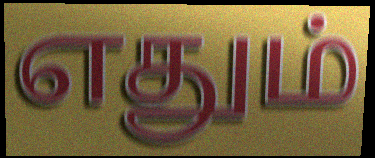
எதும்